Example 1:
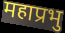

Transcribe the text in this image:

महाप्रभु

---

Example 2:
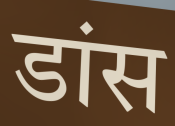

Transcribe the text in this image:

डांस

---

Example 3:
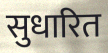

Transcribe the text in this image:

सुधारित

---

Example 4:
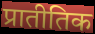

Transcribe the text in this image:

प्रातीतिक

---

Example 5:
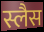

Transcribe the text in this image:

स्लैस